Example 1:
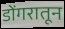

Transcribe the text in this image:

डोंगरातून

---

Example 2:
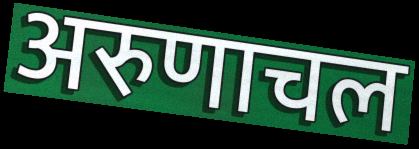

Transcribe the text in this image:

अरुणाचल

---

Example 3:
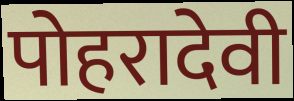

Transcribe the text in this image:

पोहरादेवी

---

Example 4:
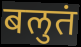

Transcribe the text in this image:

बलुतं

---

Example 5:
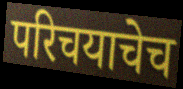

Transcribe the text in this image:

परिचयाचेच